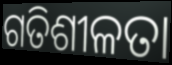
ଗତିଶୀଳତା